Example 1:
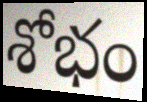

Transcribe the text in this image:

శోభం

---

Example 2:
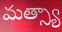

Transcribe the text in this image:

మత్స్యా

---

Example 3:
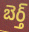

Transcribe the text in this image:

బెర్త్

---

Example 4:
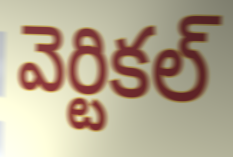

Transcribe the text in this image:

వెర్టికల్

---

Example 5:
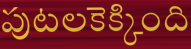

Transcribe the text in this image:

పుటలకెక్కింది